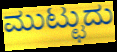
ಮುಟ್ಟುದು